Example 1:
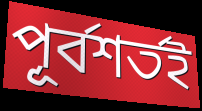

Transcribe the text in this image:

পূর্বশর্তই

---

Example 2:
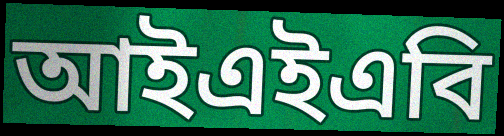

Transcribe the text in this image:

আইএইএবি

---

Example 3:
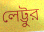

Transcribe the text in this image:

লেট্টুর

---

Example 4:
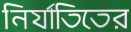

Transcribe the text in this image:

নির্যাতিতের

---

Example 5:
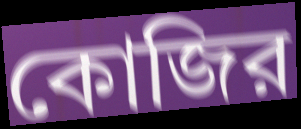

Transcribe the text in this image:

কোজির